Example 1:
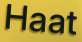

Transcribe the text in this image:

Haat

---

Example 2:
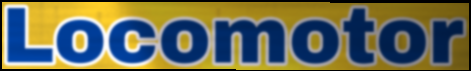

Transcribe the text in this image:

Locomotor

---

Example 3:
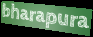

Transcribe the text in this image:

bharapura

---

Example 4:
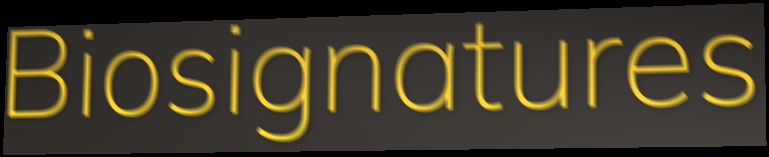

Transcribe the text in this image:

Biosignatures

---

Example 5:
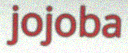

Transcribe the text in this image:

jojoba